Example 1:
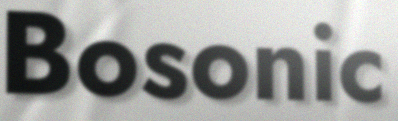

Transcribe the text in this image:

Bosonic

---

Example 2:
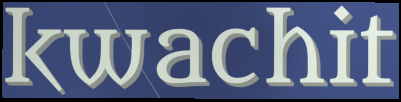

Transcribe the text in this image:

kwachit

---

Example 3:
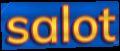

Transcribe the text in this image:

salot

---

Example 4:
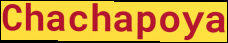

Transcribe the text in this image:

Chachapoya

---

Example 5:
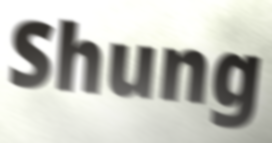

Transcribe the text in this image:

Shung